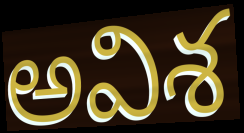
అవిశ